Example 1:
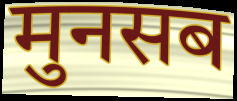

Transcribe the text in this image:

मुनसब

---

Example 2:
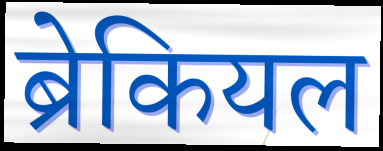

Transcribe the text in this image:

ब्रेकियल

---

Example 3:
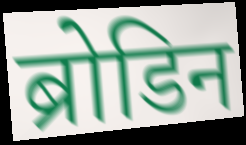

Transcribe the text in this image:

ब्रोडिन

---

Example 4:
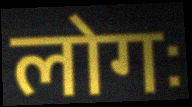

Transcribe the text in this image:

लोगः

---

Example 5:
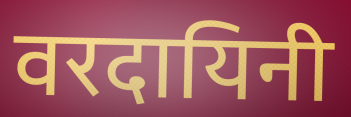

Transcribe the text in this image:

वरदायिनी